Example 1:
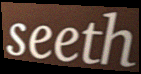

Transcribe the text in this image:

seeth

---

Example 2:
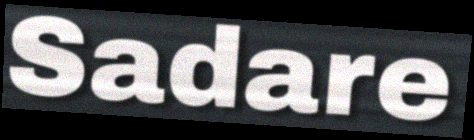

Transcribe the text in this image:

Sadare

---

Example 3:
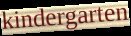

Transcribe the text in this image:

kindergarten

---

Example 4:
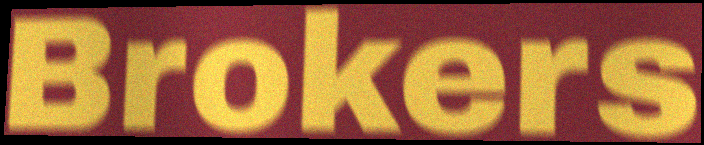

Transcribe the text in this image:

Brokers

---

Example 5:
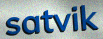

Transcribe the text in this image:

satvik